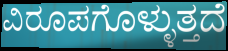
ವಿರೂಪಗೊಳ್ಳುತ್ತದೆ